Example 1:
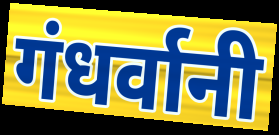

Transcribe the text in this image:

गंधर्वानी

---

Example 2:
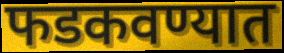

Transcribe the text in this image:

फडकवण्यात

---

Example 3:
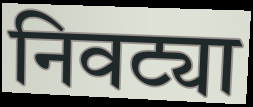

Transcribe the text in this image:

निवट्या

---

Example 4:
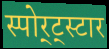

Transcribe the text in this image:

स्पोर्ट्स्टार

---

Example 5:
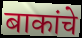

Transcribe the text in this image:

बाकांचे